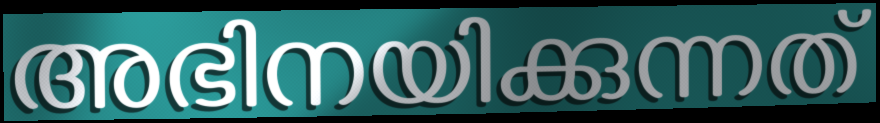
അഭിനയിക്കുന്നത്